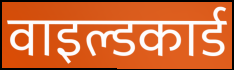
वाइल्डकार्ड